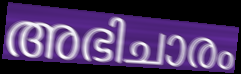
അഭിചാരം